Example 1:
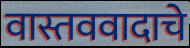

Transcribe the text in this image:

वास्तववादाचे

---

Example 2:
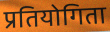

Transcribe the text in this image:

प्रतियोगिता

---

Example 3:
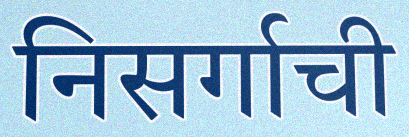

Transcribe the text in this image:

निसर्गाची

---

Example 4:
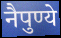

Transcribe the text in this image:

नैपुण्ये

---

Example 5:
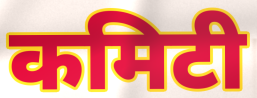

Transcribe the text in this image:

कमिटी